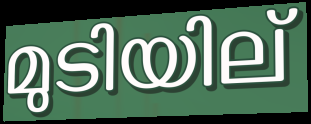
മുടിയില്